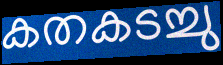
കതകടച്ചു